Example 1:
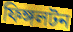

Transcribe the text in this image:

ফিঙ্গলটন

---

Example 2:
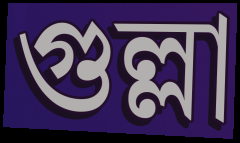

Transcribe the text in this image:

গুল্লা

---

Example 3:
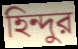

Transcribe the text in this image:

হিন্দুর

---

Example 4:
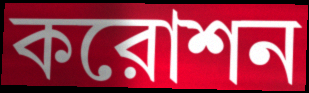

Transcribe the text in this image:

করোশন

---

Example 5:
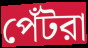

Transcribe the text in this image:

পেঁটরা